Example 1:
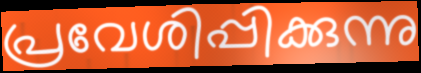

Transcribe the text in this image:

പ്രവേശിപ്പിക്കുന്നു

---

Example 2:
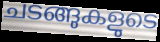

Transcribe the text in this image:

ചടങ്ങുകളുടെ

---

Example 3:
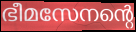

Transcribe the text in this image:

ഭീമസേനന്റെ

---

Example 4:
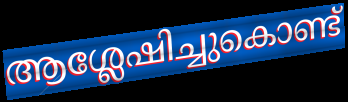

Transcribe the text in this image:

ആശ്ലേഷിച്ചുകൊണ്ട്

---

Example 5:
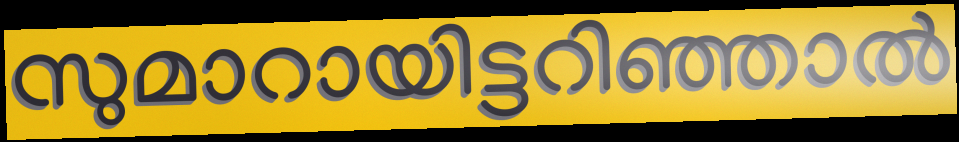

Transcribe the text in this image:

സുമാറായിട്ടറിഞ്ഞാൽ